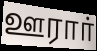
ஊரார்